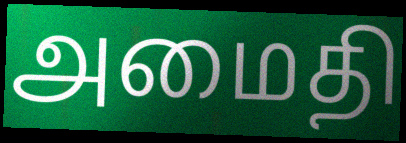
அமைதி